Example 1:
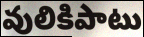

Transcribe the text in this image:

వులికిపాటు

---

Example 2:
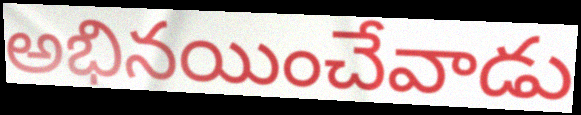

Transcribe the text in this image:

అభినయించేవాడు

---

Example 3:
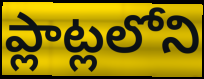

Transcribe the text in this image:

ప్లాట్లలోని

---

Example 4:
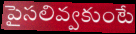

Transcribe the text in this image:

పైసలివ్వకుంటే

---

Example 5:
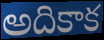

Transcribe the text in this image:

అదికాక